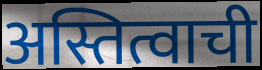
अस्तित्वाची